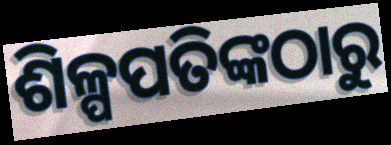
ଶିଳ୍ପପତିଙ୍କଠାରୁ